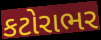
કટોરાભર